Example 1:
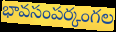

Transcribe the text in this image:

భావసంపర్కంగల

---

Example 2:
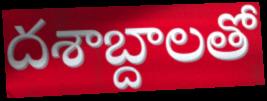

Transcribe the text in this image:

దశాబ్దాలతో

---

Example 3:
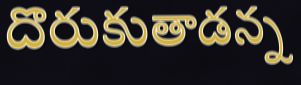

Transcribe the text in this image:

దొరుకుతాడన్న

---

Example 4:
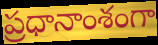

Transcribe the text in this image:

ప్రధానాంశంగా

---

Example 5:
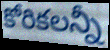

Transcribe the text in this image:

కోరికలన్నీ